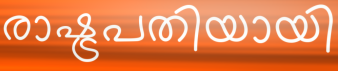
രാഷ്ട്രപതിയായി